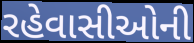
રહેવાસીઓની